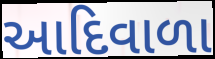
આદિવાળા